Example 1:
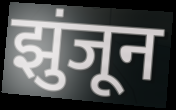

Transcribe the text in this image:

झुंजून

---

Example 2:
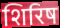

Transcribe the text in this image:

शिरिष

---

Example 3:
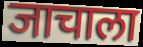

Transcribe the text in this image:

जाचाला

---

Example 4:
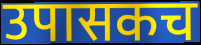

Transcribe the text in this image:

उपासकच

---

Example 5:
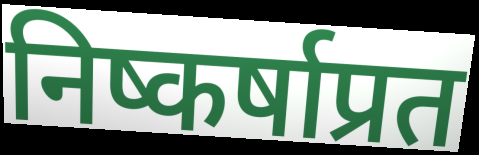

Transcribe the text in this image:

निष्कर्षाप्रत